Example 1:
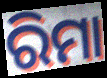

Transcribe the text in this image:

ରିମା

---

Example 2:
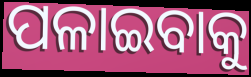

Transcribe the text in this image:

ପଳାଇବାକୁ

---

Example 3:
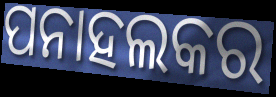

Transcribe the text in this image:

ପନାହଲକର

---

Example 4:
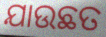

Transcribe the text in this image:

ଯାଉଛତ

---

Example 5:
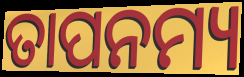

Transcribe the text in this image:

ତାପନମ୍ୟ